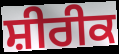
ਸ਼ੀਰੀਕ